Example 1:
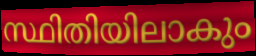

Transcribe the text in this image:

സ്ഥിതിയിലാകും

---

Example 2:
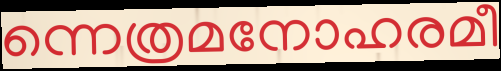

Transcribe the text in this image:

ന്നെത്രമനോഹരമീ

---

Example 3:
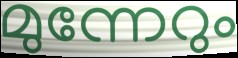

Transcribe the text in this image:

മുന്നേറും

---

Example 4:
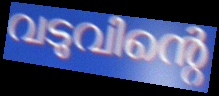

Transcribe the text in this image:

വടുവിന്റെ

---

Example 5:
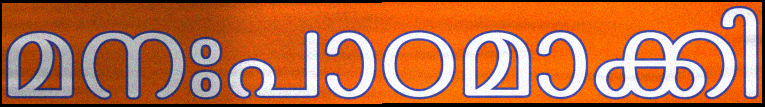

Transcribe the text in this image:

മനഃപാഠമാക്കി